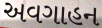
અવગાહન